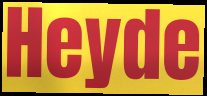
Heyde